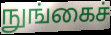
நுங்கைச்